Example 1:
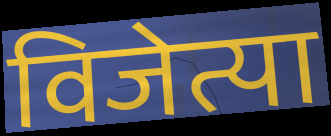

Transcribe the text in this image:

विजेत्या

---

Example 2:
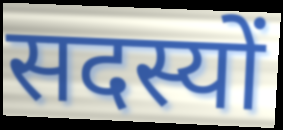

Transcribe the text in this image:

सदस्यों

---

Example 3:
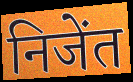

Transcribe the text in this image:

निजेंत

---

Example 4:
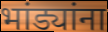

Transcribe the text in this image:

भांड्यांना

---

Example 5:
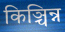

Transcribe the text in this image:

किञ्चिन्न